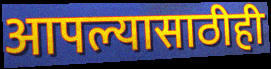
आपल्यासाठीही